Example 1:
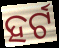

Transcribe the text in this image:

ହର୍ଟ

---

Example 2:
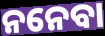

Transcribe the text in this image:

ନନେବା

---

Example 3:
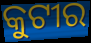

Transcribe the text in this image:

କୁଟୀର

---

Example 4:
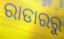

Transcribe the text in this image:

ରାଡାରରୁ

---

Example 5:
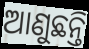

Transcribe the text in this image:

ଆଣୁଛନ୍ତି